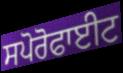
ਸਪੋਰੋਫਾਈਟ